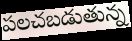
పలచబడుతున్న